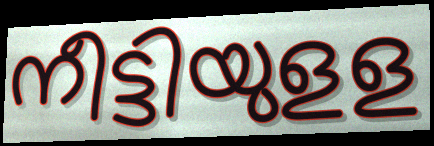
നീട്ടിയുളള